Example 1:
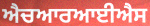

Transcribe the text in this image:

ਐਚਆਰਆਈਐਸ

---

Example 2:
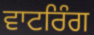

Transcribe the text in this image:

ਵਾਟਰਿੰਗ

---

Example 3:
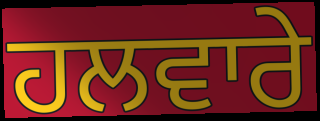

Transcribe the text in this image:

ਹਲਵਾਰੇ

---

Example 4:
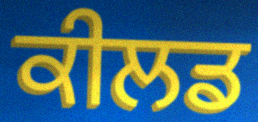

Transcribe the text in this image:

ਕੀਲਡ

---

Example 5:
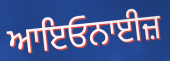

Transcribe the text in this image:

ਆਇਓਨਾਈਜ਼